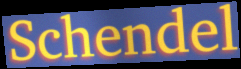
Schendel